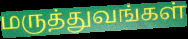
மருத்துவங்கள்